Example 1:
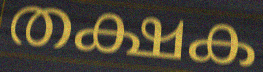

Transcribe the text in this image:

തക്ഷക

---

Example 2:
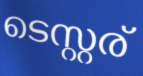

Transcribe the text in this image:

ടെസ്റ്റര്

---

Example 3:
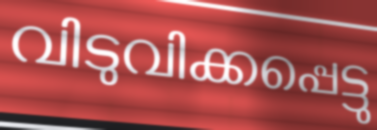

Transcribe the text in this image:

വിടുവിക്കപ്പെട്ടു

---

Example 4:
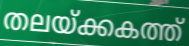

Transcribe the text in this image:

തലയ്ക്കകത്ത്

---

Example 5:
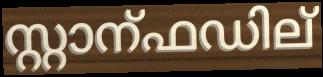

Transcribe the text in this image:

സ്റ്റാന്ഫഡില്